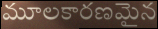
మూలకారణమైన